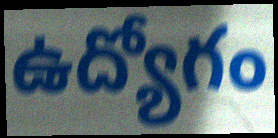
ఉద్యోగం